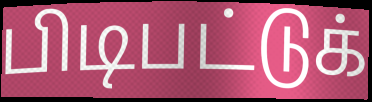
பிடிபட்டுக்